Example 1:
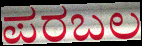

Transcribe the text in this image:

ಪರಬಲ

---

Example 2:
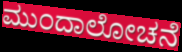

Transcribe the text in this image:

ಮುಂದಾಲೋಚನೆ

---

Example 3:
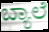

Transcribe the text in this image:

ಬ್ಯಾಲೆ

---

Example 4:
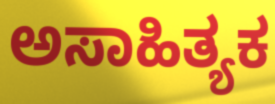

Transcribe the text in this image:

ಅಸಾಹಿತ್ಯಕ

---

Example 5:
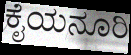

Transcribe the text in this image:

ಕೈಯನೂರಿ